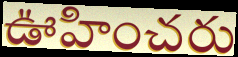
ఊహించరు